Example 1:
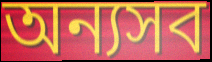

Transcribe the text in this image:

অন্যসব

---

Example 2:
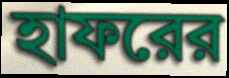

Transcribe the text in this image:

হাফরের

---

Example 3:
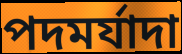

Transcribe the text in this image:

পদমর্যাদা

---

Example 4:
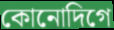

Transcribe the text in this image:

কোনোদিগে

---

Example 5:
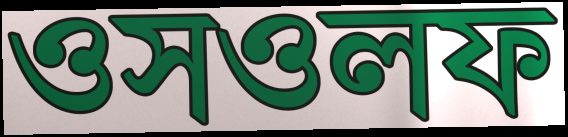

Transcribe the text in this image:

ওসওলফ